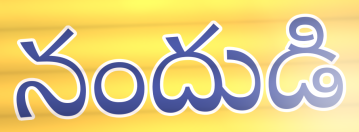
నందుడి